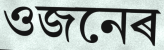
ওজনেৰ